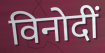
विनोदीं